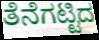
ತೆನೆಗಟ್ಟಿದ